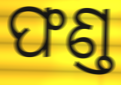
ଫଣ୍ଡ